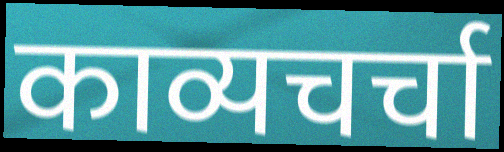
काव्यचर्चा